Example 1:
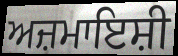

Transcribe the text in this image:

ਅਜ਼ਮਾਇਸ਼ੀ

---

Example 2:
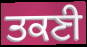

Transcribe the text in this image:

ਤਕਣੀ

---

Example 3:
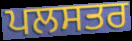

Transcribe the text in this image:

ਪਲਸਤਰ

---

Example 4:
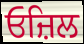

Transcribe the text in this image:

ਓਜ਼ਿਲ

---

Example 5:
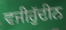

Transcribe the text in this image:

ਵਜੀਹੁੱਦੀਨ